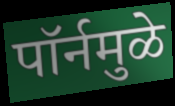
पॉर्नमुळे